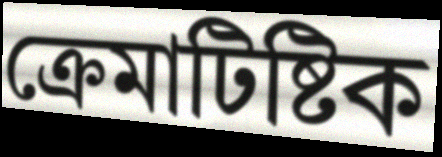
ক্রেমাটিষ্টিক